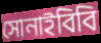
সোনাইবিবি